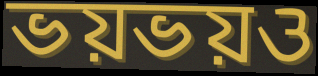
ভয়ভয়ও